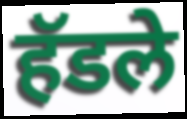
हॅडले